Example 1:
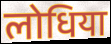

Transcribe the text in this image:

लोधिया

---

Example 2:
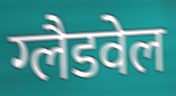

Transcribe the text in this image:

ग्लैडवेल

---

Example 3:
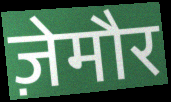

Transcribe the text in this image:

ज़ेमौर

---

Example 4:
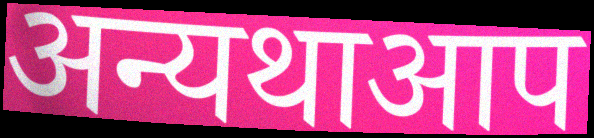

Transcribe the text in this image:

अन्यथाआप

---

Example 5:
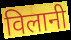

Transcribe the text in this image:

विलानी